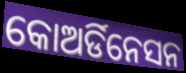
କୋଅର୍ଡିନେସନ